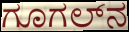
ಗೂಗಲ್‌ನ